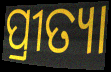
ପ୍ରୀତ୍ୟା